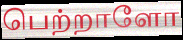
பெற்றாளோ